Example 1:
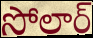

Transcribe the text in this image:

సోలార్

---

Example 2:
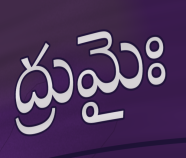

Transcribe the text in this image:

ద్రుమైః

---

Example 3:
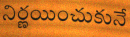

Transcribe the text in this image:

నిర్ణయించుకునే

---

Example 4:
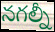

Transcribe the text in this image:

నగల్నీ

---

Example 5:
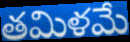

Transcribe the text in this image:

తమిళమే